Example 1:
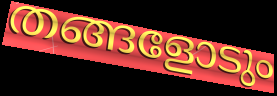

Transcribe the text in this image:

തങ്ങളോടും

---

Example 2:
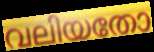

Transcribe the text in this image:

വലിയതോ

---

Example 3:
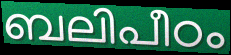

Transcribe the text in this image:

ബലിപീഠം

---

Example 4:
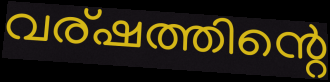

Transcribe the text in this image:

വര്ഷത്തിന്റെ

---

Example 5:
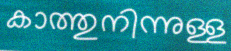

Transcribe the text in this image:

കാത്തുനിന്നുള്ള